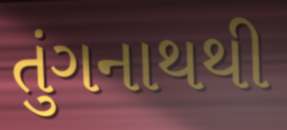
તુંગનાથથી